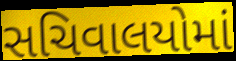
સચિવાલયોમાં